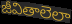
జీవితాలెలా